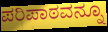
ಪರಿಪಾಠವನ್ನೂ